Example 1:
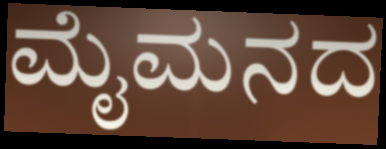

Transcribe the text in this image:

ಮೈಮನದ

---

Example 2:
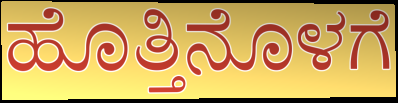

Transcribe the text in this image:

ಹೊತ್ತಿನೊಳಗೆ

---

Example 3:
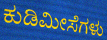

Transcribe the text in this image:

ಕುಡಿಮೀಸೆಗಳು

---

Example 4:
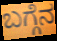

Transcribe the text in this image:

ಬಗ್ಗೆನ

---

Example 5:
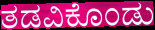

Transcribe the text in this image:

ತಡವಿಕೊಂಡು